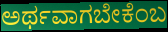
ಅರ್ಥವಾಗಬೇಕೆಂಬ